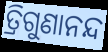
ତ୍ରିଗୁଣାନନ୍ଦ